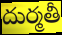
దుర్మతీ